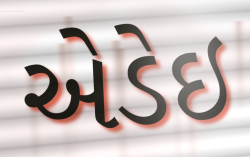
એડેઇ